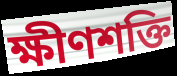
ক্ষীণশক্তি